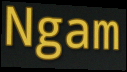
Ngam